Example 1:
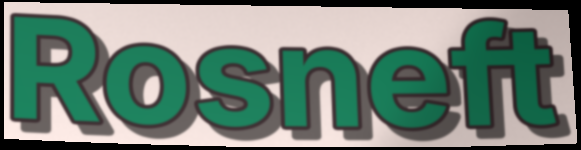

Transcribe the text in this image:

Rosneft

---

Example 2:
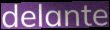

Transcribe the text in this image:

delante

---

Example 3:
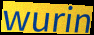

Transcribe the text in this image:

wurin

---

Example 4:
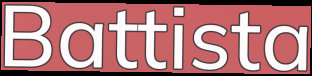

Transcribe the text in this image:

Battista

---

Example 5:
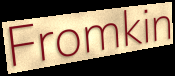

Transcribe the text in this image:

Fromkin